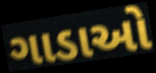
ગાડાઓ